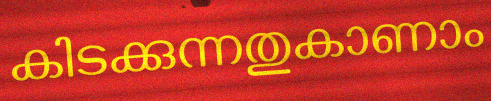
കിടക്കുന്നതുകാണാം